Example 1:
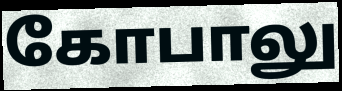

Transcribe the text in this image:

கோபாலு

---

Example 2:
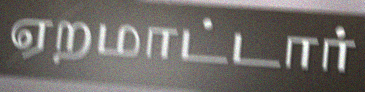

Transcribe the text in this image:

ஏறமாட்டார்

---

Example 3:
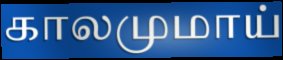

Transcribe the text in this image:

காலமுமாய்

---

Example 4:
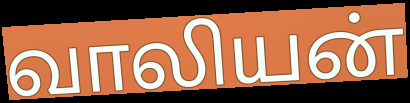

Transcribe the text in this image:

வாலியன்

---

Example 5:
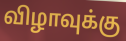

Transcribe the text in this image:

விழாவுக்கு